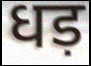
धड़